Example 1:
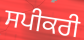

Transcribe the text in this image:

ਸਪੀਕਰੀ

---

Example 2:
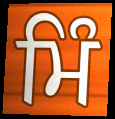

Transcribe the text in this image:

ਮਿੰ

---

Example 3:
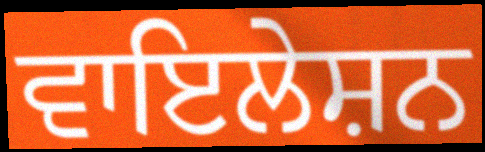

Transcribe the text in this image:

ਵਾਇਲੇਸ਼ਨ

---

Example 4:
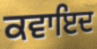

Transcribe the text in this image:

ਕਵਾਇਦ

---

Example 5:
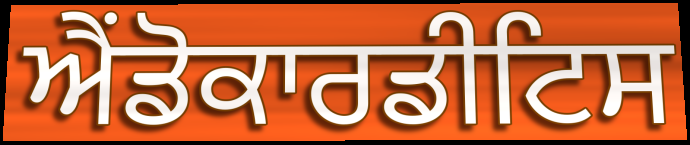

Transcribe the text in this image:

ਐਂਡੋਕਾਰਡੀਟਿਸ